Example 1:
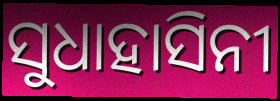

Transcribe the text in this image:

ସୁଧାହାସିନୀ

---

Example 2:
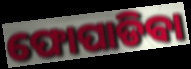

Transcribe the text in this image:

ଫୋପାଡିବା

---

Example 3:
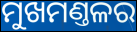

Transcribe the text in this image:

ମୁଖମଣ୍ତଳର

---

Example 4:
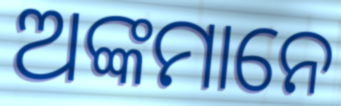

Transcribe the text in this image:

ଅଙ୍କମାନେ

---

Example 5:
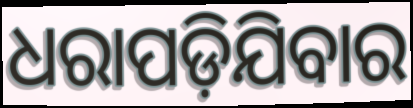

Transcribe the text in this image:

ଧରାପଡ଼ିଯିବାର